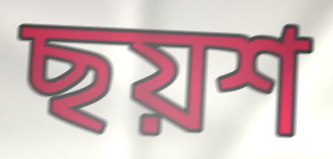
ছয়শ